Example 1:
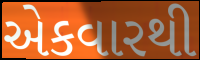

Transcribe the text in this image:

એકવારથી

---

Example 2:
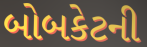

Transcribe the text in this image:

બોબકેટની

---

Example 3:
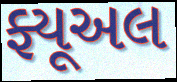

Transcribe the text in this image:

ફ્યૂઅલ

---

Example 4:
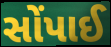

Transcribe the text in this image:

સોંપાઈ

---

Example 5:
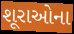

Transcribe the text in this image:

શૂરાઓના